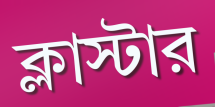
ক্লাস্টার